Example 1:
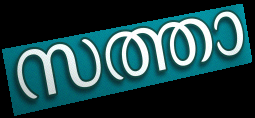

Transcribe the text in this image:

സത്താ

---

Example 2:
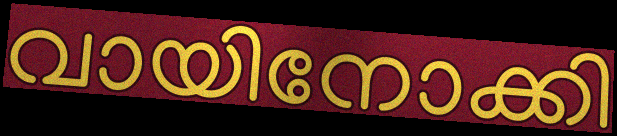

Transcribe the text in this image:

വായിനോക്കി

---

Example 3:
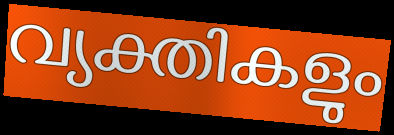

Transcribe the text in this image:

വ്യക്തികളും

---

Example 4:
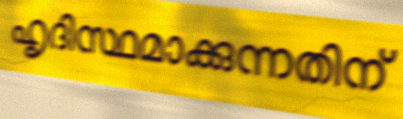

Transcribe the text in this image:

ഹൃദിസ്ഥമാക്കുന്നതിന്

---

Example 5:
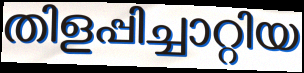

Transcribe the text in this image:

തിളപ്പിച്ചാറ്റിയ